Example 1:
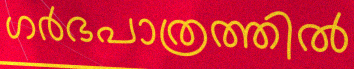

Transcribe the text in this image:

ഗർഭപാത്രത്തിൽ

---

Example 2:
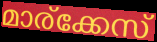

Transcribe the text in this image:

മാര്ക്കേസ്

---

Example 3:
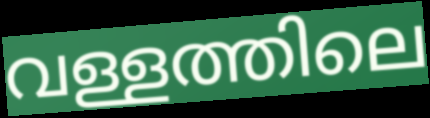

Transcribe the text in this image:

വള്ളത്തിലെ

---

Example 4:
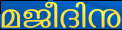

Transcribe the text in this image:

മജീദിനു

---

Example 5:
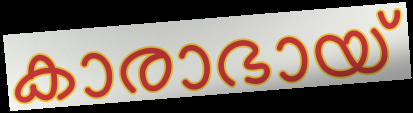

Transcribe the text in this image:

കാരാഭായ്